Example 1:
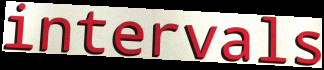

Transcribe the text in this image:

intervals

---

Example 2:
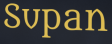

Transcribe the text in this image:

Supan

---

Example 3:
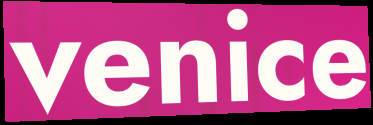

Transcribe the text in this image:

venice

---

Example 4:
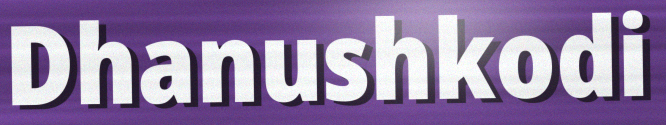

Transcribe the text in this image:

Dhanushkodi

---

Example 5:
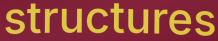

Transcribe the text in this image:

structures